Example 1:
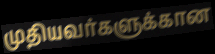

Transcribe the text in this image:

முதியவர்களுக்கான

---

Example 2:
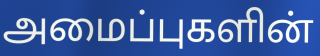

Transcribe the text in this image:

அமைப்புகளின்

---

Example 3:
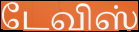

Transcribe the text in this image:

டேவிஸ்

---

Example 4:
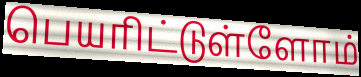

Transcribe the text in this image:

பெயரிட்டுள்ளோம்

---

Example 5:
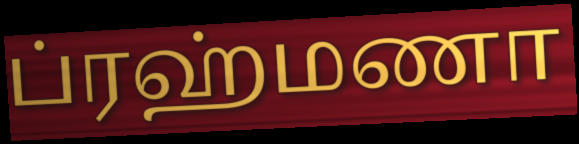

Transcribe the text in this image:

ப்ரஹ்மணா